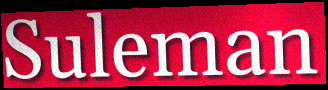
Suleman